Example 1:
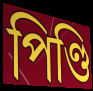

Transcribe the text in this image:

পিণ্ডি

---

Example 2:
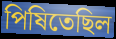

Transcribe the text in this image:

পিষিতেছিল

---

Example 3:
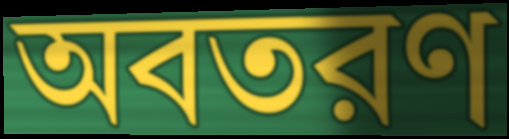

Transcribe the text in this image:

অবতরণ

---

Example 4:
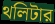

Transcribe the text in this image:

থলিটার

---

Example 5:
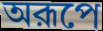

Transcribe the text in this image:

অরূপে